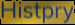
Histpry